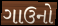
ગાઉનો